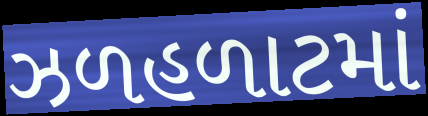
ઝળહળાટમાં